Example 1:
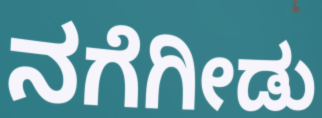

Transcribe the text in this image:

ನಗೆಗೀಡು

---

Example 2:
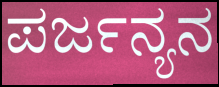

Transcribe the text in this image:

ಪರ್ಜನ್ಯನ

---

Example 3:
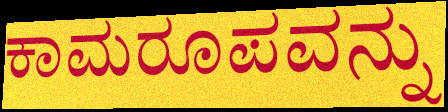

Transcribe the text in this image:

ಕಾಮರೂಪವನ್ನು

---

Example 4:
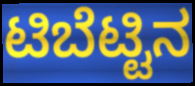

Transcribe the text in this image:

ಟಿಬೆಟ್ಟಿನ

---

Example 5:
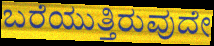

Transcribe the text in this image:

ಬರೆಯುತ್ತಿರುವುದೇ